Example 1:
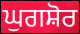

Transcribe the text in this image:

ਘੁਗਸ਼ੋਰ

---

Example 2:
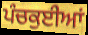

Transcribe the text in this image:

ਪੰਚਕੁਈਆਂ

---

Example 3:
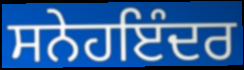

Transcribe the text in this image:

ਸਨੇਹਇੰਦਰ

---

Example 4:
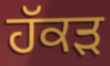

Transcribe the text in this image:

ਹੱਕੜ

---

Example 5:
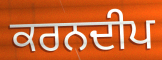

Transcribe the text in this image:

ਕਰਨਦੀਪ